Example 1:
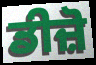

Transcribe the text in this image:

ਡੀਜ਼ੋ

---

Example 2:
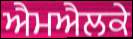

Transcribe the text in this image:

ਐਮਐਲਕੇ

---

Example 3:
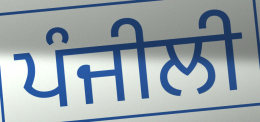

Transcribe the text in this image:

ਪੰਜੀਲੀ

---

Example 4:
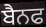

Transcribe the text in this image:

ਬੈਨਫ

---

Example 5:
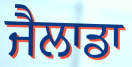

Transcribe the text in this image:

ਜੈਲਾਡਾ